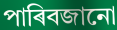
পাৰিবজানো